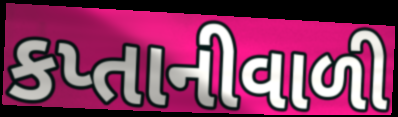
કપ્તાનીવાળી